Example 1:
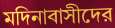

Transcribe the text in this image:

মদিনাবাসীদের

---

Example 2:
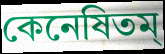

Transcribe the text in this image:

কেনেষিতম্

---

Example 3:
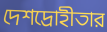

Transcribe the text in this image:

দেশদ্রোহীতার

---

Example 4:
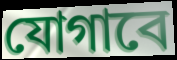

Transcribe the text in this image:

যোগাবে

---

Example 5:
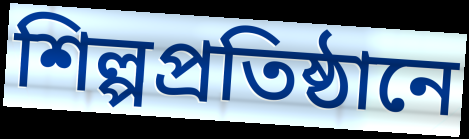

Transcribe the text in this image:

শিল্পপ্রতিষ্ঠানে